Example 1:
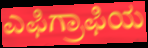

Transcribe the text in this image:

ಎಫಿಗ್ರಾಫಿಯ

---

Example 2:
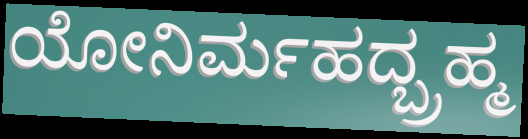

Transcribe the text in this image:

ಯೋನಿರ್ಮಹದ್ಬ್ರಹ್ಮ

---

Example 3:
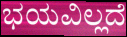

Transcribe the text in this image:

ಭಯವಿಲ್ಲದೆ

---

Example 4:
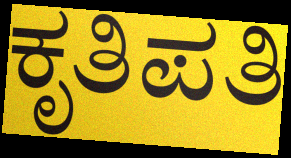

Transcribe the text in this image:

ಕೃತಿಪತಿ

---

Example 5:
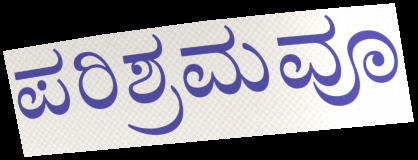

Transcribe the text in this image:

ಪರಿಶ್ರಮವೂ